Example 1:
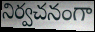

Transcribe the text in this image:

నిర్వచనంగా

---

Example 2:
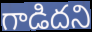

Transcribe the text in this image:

గాడిదని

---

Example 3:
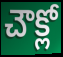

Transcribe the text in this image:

చౌక్లో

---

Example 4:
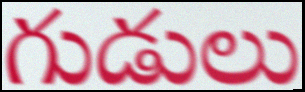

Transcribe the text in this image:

గుడులు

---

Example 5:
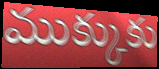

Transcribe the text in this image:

ముక్కుకు